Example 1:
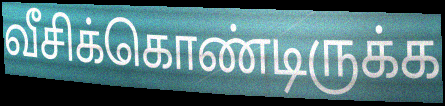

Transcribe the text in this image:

வீசிக்கொண்டிருக்க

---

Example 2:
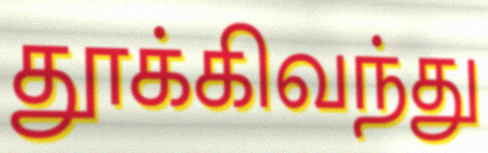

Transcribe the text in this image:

தூக்கிவந்து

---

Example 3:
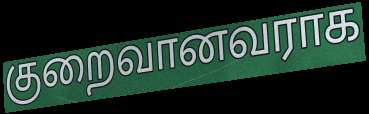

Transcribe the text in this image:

குறைவானவராக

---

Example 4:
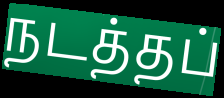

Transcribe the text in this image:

நடத்தப்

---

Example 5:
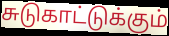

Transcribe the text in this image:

சுடுகாட்டுக்கும்